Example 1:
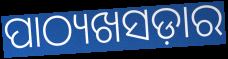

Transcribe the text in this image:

ପାଠ୍ୟଖସଡ଼ାର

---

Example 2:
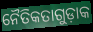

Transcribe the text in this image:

ନୈତିକତାଗୁଡ଼ାକ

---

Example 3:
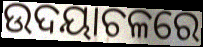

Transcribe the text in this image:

ଉଦୟାଚଳରେ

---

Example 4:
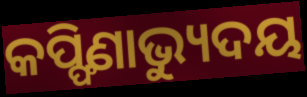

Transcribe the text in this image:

କପ୍ଫିଣାଭ୍ୟୁଦୟ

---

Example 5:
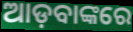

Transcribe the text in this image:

ଆଡ଼ବାଙ୍କରେ